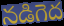
నడిగెద